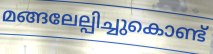
മങ്ങലേല്പിച്ചുകൊണ്ട്